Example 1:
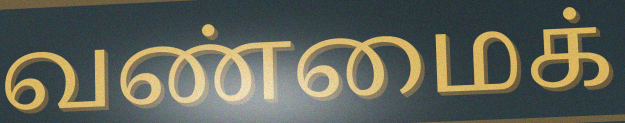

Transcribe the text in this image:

வண்மைக்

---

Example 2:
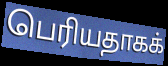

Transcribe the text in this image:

பெரியதாகக்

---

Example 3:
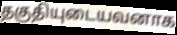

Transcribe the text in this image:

தகுதியுடையவனாக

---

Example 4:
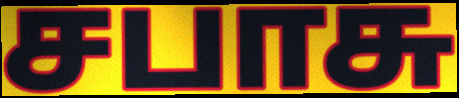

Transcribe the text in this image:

சபாசு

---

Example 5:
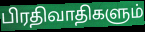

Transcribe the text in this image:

பிரதிவாதிகளும்